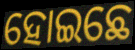
ହୋଇଛେ